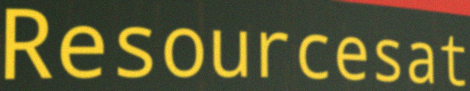
Resourcesat